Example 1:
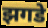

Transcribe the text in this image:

झगडे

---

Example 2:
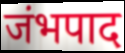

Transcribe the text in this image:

जंभपाद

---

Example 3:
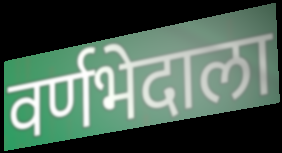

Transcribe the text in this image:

वर्णभेदाला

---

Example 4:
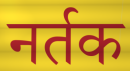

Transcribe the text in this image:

नर्तक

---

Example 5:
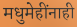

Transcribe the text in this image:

मधुमेहींनाही